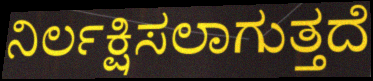
ನಿರ್ಲಕ್ಷಿಸಲಾಗುತ್ತದೆ